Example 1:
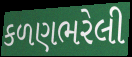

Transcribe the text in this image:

કળણભરેલી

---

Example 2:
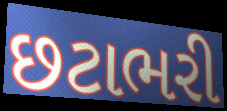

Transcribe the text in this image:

છટાભરી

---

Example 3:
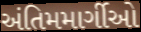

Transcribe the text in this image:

અંતિમમાર્ગીઓ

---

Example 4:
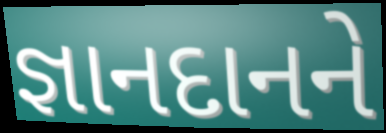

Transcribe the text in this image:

જ્ઞાનદાનને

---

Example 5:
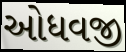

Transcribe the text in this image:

ઓધવજી